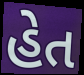
હેત